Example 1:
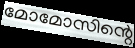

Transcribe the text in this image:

മോമോസിന്റെ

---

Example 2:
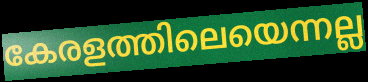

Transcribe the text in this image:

കേരളത്തിലെയെന്നല്ല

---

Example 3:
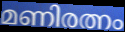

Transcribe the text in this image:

മണിരത്നം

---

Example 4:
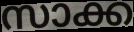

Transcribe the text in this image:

സാക്ക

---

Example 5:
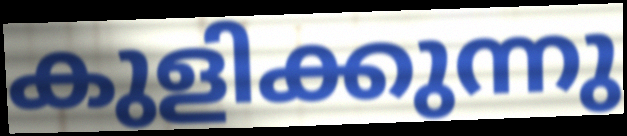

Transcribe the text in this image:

കുളിക്കുന്നു